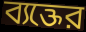
ব্যক্তের